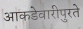
आकडेवारीपुरते